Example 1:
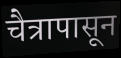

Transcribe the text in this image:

चैत्रापासून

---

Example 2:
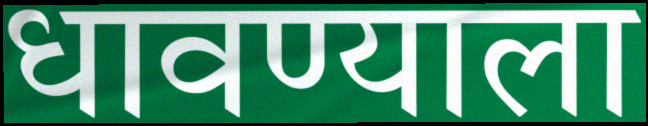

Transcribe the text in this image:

धावण्याला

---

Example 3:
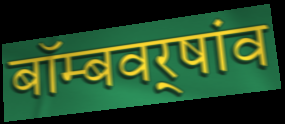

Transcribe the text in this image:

बॉम्बवर्षांव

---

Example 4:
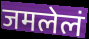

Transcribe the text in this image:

जमलेलं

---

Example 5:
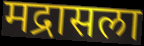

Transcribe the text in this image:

मद्रासला